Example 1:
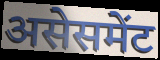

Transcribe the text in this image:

असेसमेंट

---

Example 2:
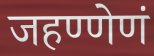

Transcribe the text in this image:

जहण्णेणं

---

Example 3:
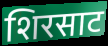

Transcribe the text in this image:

शिरसाट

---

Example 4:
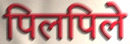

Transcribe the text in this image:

पिलपिले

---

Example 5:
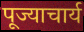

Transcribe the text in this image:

पूज्याचार्य